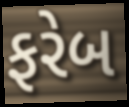
ફરેબ